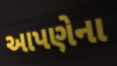
આપણેના